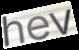
hev